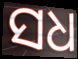
ସଧ